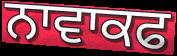
ਨਾਵਾਕਫ